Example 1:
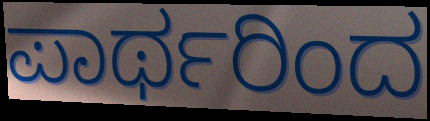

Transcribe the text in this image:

ಪಾರ್ಥರಿಂದ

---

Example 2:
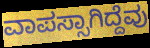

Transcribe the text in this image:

ವಾಪಸ್ಸಾಗಿದ್ದೆವು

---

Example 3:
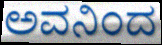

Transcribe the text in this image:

ಅವನಿಂದ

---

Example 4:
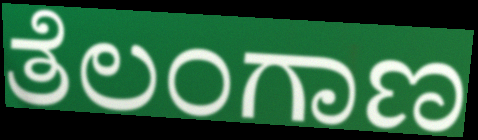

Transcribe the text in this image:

ತೆಲಂಗಾಣ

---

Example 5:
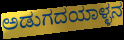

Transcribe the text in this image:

ಅಡುಗದಯಾಳ್ಳನ